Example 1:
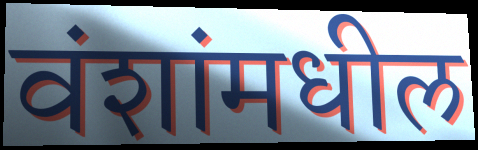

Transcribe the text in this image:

वंशांमधील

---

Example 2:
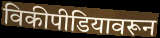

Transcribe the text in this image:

विकीपीडियावरून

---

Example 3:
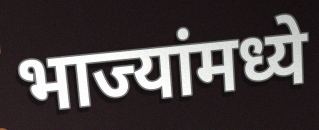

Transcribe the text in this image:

भाज्यांमध्ये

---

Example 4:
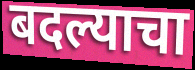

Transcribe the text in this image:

बदल्याचा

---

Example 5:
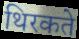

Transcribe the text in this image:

थिरकते